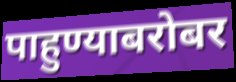
पाहुण्याबरोबर